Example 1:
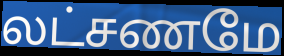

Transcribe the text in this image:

லட்சணமே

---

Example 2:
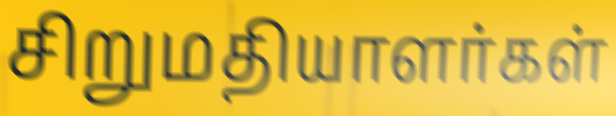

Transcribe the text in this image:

சிறுமதியாளர்கள்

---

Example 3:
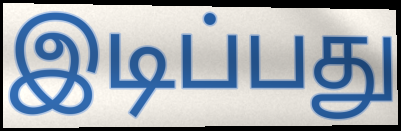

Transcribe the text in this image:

இடிப்பது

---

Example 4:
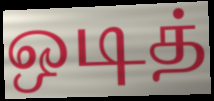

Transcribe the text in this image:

ஒடித்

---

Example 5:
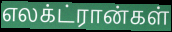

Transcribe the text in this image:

எலக்ட்ரான்கள்